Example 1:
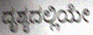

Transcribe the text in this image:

ದೃಶ್ಯದಲ್ಲಿಯೇ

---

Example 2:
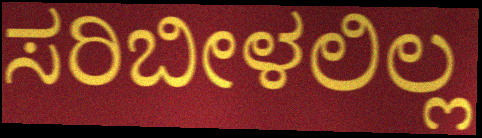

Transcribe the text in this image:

ಸರಿಬೀಳಲಿಲ್ಲ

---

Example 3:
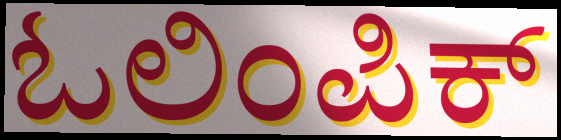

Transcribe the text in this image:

ಓಲಿಂಪಿಕ್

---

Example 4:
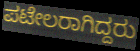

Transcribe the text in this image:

ಪಟೇಲರಾಗಿದ್ದರು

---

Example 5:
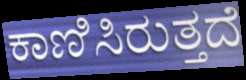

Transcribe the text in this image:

ಕಾಣಿಸಿರುತ್ತದೆ